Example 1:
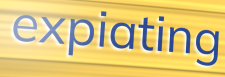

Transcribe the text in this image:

expiating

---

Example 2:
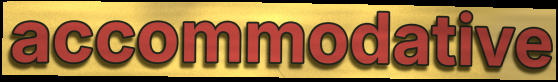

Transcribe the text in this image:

accommodative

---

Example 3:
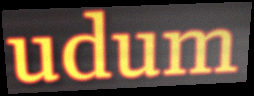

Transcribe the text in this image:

udum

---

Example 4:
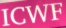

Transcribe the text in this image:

ICWF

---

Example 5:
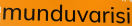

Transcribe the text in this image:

munduvarisi